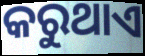
କରୁଥାଏ